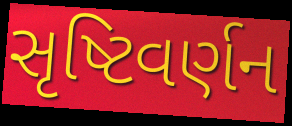
સૃષ્ટિવર્ણન